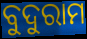
ବୁଦୁରାମ